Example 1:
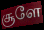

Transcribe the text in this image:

சூளே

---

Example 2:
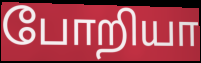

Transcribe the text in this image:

போறியா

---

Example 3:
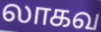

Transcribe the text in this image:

லாகவ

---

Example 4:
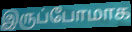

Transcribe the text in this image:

இருப்போமாக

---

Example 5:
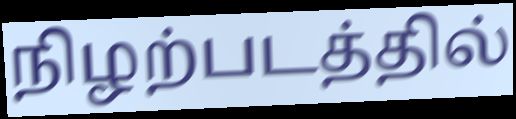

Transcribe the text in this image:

நிழற்படத்தில்